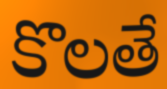
కొలతే